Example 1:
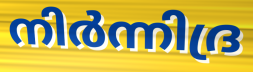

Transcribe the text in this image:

നിർന്നിദ്ര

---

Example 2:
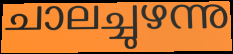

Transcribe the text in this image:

ചാലച്ചുഴന്നു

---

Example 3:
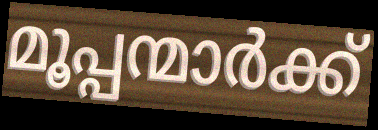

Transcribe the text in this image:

മൂപ്പന്മാർക്ക്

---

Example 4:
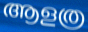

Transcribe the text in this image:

ആളത്ര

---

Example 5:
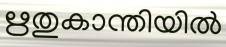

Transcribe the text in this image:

ഋതുകാന്തിയിൽ